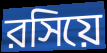
রসিয়ে